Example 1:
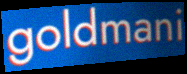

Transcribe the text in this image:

goldmani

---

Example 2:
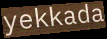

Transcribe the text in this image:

yekkada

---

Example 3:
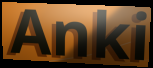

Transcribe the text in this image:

Anki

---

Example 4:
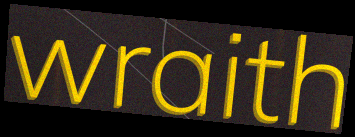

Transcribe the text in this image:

wraith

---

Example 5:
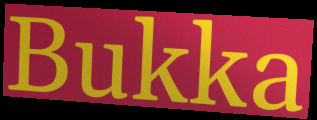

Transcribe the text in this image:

Bukka